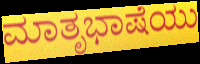
ಮಾತೃಭಾಷೆಯು